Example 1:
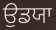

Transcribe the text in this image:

ਉਡਯਾ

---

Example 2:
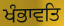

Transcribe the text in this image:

ਖੰਭਾਵਤਿ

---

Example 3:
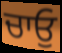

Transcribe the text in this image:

ਚਾਓੁ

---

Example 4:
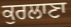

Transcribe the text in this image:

ਕੁਰਲਾਣਾ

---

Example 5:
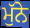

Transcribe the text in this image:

ਮੁੱਨੇ